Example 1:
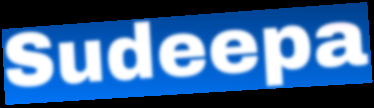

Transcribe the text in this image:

Sudeepa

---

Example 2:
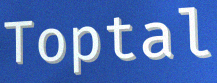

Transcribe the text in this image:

Toptal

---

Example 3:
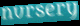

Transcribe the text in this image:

nursery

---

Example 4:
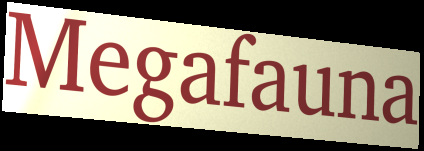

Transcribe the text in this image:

Megafauna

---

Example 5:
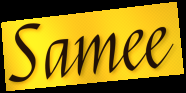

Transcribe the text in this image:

Samee